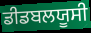
ਡੀਡਬਲਯੂਸੀ